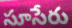
సూసేరు